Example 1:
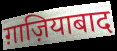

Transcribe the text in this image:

ग़ाज़ियाबाद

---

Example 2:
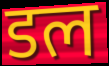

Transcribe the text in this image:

डल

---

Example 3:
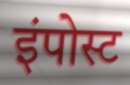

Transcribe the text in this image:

इंपोस्ट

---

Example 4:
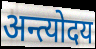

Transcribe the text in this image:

अन्त्योदय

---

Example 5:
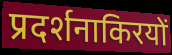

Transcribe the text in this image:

प्रदर्शनाकिरयों